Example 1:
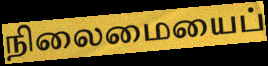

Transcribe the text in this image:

நிலைமையைப்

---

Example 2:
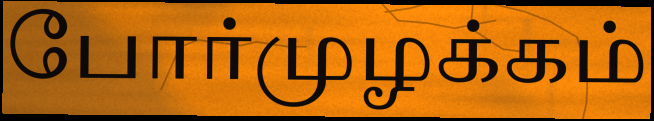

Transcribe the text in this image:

போர்முழக்கம்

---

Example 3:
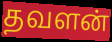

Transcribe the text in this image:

தவளன்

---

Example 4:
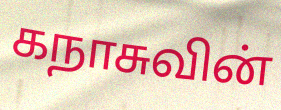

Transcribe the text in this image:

கநாசுவின்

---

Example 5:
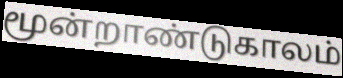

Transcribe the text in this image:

மூன்றாண்டுகாலம்